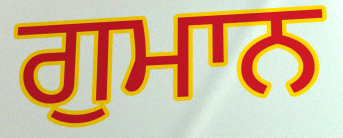
ਗੁਮਾਨ